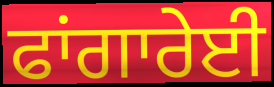
ਫਾਂਗਾਰੇਈ